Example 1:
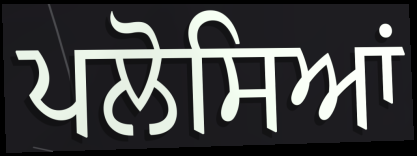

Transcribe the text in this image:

ਪਲੋਸਿਆਂ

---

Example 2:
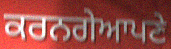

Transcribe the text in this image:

ਕਰਨਗੇਆਪਣੇ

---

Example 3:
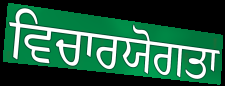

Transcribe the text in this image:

ਵਿਚਾਰਯੋਗਤਾ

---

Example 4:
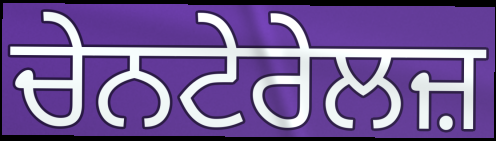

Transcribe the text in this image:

ਚੇਨਟੇਰੇਲਜ਼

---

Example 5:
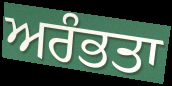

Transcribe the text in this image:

ਅਰੰਭਤਾ